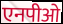
एनपीओ